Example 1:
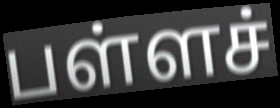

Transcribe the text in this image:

பள்ளச்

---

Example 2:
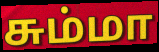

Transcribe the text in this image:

சும்மா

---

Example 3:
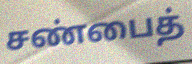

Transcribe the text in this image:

சண்பைத்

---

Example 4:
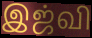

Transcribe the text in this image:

இஜ்வி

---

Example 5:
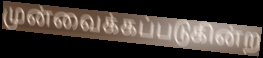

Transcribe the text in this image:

முன்வைக்கப்படுகின்ற